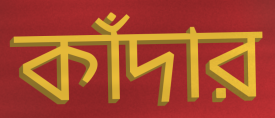
কাঁদার